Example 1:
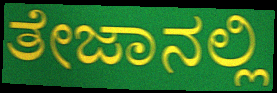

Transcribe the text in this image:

ತೇಜಾನಲ್ಲಿ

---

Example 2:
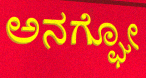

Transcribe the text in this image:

ಅನಗ್ಘೋ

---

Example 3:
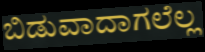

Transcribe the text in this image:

ಬಿಡುವಾದಾಗಲೆಲ್ಲ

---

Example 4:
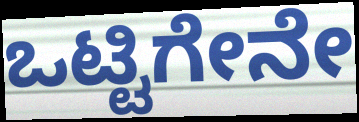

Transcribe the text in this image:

ಒಟ್ಟಿಗೇನೇ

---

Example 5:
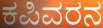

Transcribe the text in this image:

ಕಪಿವರನ